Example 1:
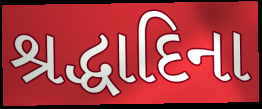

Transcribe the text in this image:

શ્રદ્ધાદિના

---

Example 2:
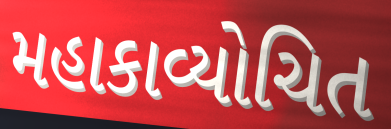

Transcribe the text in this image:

મહાકાવ્યોચિત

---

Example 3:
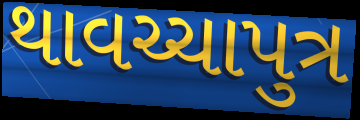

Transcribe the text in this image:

થાવચ્ચાપુત્ર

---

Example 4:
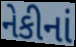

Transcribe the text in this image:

નેકીનાં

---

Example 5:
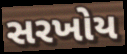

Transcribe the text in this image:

સરખોય